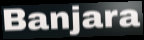
Banjara